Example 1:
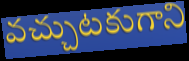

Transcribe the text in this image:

వచ్చుటకుగాని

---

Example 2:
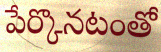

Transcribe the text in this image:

పేర్కొనటంతో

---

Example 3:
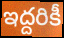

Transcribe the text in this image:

ఇద్దరికీ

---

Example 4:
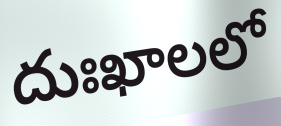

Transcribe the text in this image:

దుఃఖాలలో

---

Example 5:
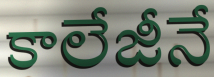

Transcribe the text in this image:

కాలేజీనే